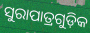
ସୁରାପାତ୍ରଗୁଡ଼ିକ